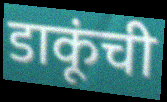
डाकूंची